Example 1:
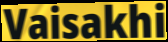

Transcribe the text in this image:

Vaisakhi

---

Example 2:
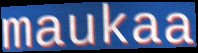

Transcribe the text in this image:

maukaa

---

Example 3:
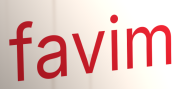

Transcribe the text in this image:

favim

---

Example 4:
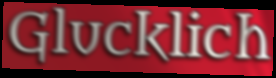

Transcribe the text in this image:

Glucklich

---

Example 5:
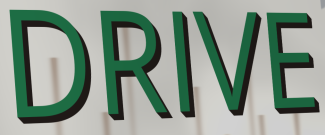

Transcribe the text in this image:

DRIVE